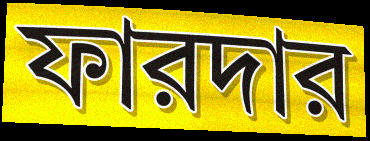
ফারদার